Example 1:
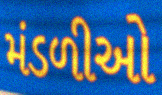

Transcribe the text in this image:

મંડળીઓ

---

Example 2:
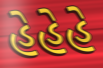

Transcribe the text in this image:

હેહેહે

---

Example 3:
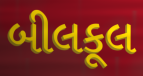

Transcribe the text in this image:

બીલકૂલ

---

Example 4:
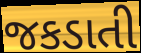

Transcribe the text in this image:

જકડાતી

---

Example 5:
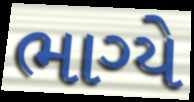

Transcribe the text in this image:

ભાગ્યે